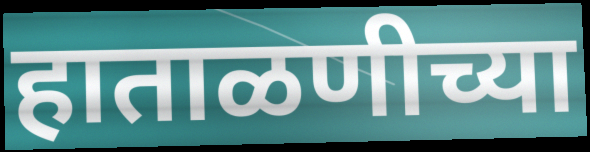
हाताळणीच्या